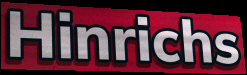
Hinrichs